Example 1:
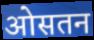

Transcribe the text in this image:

ओसतन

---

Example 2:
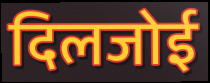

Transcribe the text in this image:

दिलजोई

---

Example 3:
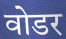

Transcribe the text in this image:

वोडर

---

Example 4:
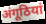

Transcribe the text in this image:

अंगूठियां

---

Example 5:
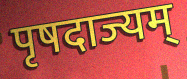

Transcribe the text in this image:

पृषदाज्यम्